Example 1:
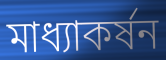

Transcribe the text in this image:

মাধ্যাকর্ষন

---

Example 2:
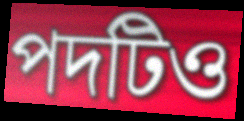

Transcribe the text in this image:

পদটিও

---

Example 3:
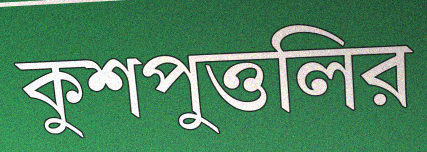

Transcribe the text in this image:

কুশপুত্তলির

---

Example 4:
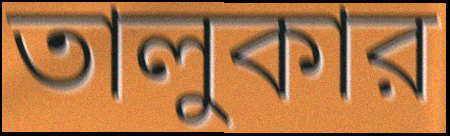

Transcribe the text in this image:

তালুকার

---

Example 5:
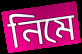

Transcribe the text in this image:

নিমে